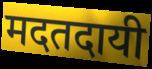
मदतदायी